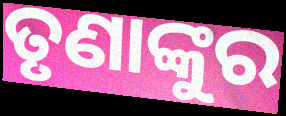
ତୃଣାଙ୍କୁର